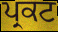
ਪ੍ਰਕਟ